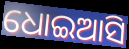
ଧୋଇଆସି